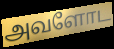
அவளோட